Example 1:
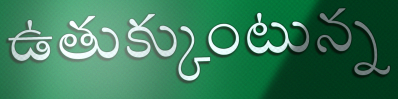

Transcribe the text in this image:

ఉతుక్కుంటున్న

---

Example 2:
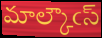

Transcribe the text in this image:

మాల్కౌఁస్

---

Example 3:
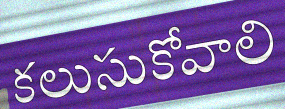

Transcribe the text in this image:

కలుసుకోవాలి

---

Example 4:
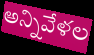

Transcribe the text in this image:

అన్నివేళల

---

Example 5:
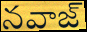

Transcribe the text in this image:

నవాజ్